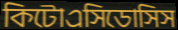
কিটোএসিডোসিস